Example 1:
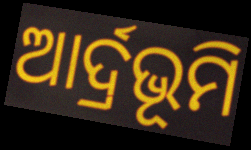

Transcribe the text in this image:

ଆର୍ଦ୍ରଭୂମି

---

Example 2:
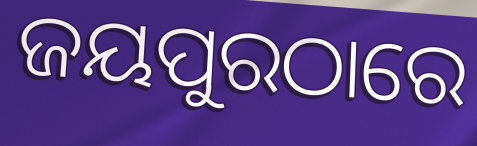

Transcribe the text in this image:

ଜୟପୁରଠାରେ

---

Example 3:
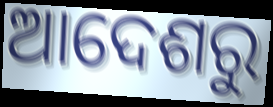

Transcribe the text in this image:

ଆଦେଶରୁ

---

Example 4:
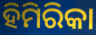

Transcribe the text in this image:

ହିମିରିକା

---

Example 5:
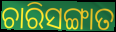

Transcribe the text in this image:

ଚାରିସଙ୍ଗାତ